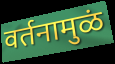
वर्तनामुळं